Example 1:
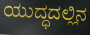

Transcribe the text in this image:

ಯುದ್ಧದಲ್ಲಿನ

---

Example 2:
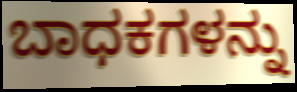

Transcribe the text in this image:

ಬಾಧಕಗಳನ್ನು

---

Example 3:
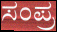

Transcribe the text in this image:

ಸಂಪ್ರ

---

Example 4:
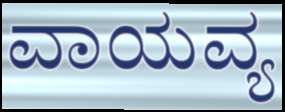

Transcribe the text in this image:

ವಾಯವ್ಯ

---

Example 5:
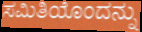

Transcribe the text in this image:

ಸಮಿತಿಯೊಂದನ್ನು